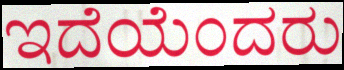
ಇದೆಯೆಂದರು